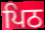
ਪਿਠ